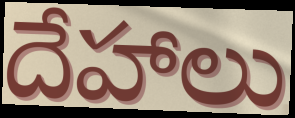
దేహాలు